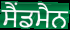
ਸੈਂਡਮੈਨ